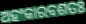
ଅହଂକାରବଶତଃ